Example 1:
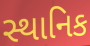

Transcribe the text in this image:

સ્થાનિક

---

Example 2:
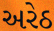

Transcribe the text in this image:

અરેઠ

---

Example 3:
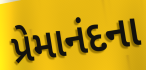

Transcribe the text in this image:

પ્રેમાનંદના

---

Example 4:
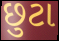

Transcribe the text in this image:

છુટા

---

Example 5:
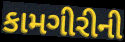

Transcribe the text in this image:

કામગીરીની